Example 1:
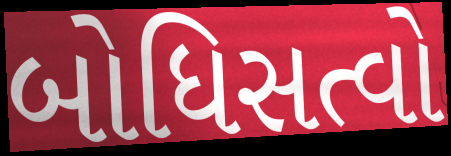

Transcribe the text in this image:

બોધિસત્વો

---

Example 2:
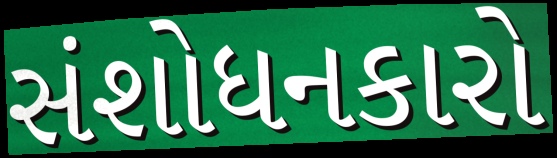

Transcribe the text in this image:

સંશોધનકારો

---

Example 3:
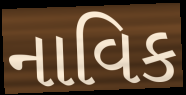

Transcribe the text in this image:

નાવિક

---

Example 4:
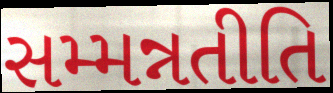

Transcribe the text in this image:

સમ્મન્નતીતિ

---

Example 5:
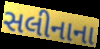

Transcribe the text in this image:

સલીનાના